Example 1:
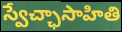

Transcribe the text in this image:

స్వేచ్ఛాసాహితి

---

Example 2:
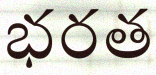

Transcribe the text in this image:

భరత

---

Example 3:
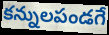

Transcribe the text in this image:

కన్నులపండగే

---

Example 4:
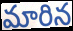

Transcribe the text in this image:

మారిన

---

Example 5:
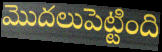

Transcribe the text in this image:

మొదలుపెట్టింది